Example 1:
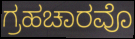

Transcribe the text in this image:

ಗ್ರಹಚಾರವೊ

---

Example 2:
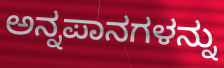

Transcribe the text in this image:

ಅನ್ನಪಾನಗಳನ್ನು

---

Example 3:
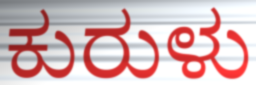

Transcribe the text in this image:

ಕುರುಳು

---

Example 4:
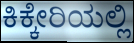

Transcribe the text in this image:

ಕಿಕ್ಕೇರಿಯಲ್ಲಿ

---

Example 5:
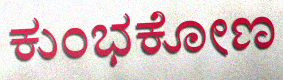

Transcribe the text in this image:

ಕುಂಭಕೋಣ